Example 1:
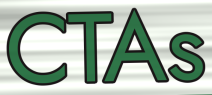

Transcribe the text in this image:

CTAs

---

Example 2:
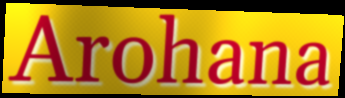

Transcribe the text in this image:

Arohana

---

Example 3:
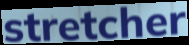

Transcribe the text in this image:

stretcher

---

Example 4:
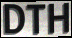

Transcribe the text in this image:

DTH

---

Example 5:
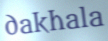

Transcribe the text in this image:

dakhala